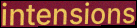
intensions